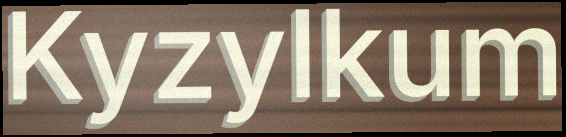
Kyzylkum